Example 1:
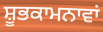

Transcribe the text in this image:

ਸ਼ੂਭਕਾਮਨਾਵਾਂ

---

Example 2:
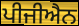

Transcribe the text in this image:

ਪੀਜੀਐਨ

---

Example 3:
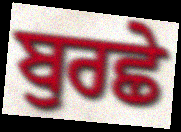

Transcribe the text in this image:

ਬੁਰਛੇ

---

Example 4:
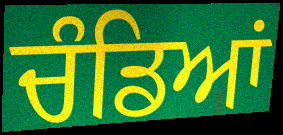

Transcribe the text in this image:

ਚੰਡਿਆਂ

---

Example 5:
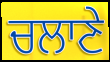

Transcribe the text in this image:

ਚਲਾਣੇ